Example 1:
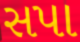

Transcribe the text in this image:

સપા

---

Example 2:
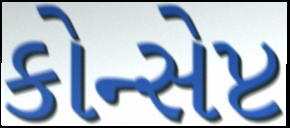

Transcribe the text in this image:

કોન્સેપ્ટ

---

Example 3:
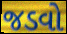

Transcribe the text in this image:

જડવો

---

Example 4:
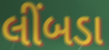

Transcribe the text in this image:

લીંબડા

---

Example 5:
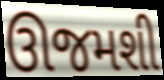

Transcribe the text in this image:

ઊજમશી